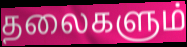
தலைகளும்